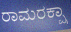
ರಾಮರಕ್ಷಾ